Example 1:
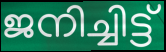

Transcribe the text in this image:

ജനിച്ചിട്ട്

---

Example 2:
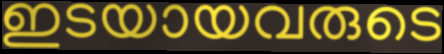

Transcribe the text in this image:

ഇടയായവരുടെ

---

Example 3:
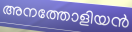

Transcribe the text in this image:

അനത്തോളിയൻ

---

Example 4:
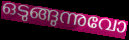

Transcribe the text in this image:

ഒടുങ്ങുന്നുവോ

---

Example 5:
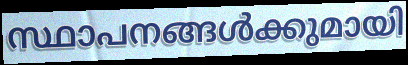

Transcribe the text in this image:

സ്ഥാപനങ്ങൾക്കുമായി